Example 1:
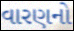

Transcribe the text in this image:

વારણનો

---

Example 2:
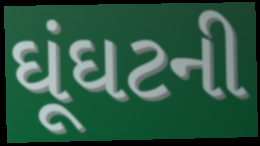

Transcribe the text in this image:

ઘૂંઘટની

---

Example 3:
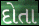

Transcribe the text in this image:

દોતા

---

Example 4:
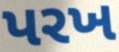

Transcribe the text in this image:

પરખ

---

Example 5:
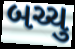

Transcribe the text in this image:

બચ્ચુ